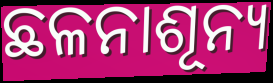
ଛଳନାଶୂନ୍ୟ